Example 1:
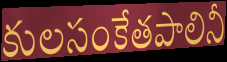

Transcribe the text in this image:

కులసంకేతపాలినీ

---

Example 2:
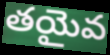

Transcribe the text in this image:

తయైవ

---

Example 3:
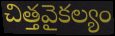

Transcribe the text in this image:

చిత్తవైకల్యం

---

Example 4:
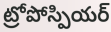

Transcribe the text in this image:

ట్రోపోస్పియర్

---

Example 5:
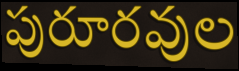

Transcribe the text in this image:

పురూరవుల